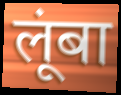
लूंबा